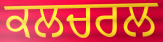
ਕਲਚਰਲ